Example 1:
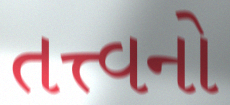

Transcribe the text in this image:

તત્ત્વનો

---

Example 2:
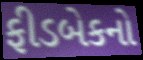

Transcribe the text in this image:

ફીડબેકનો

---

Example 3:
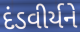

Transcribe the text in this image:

દંડવીર્યને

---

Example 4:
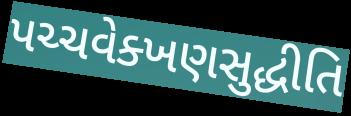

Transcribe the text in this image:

પચ્ચવેક્ખણસુદ્ધીતિ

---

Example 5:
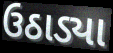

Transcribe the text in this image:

ઉઠાડ્યા